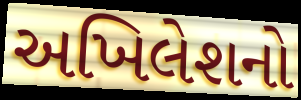
અખિલેશનો